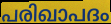
പരിഖാപദം